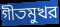
গীতমুখর